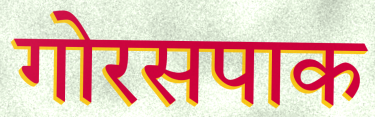
गोरसपाक